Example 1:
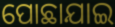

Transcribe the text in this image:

ପୋଛାଯାଇ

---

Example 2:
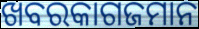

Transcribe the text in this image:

ଖବରକାଗଜମାନ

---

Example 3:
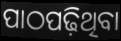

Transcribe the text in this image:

ପାଠପଢ଼ିଥିବା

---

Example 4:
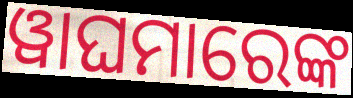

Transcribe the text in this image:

ୱାଘମାରେଙ୍କ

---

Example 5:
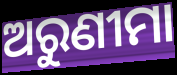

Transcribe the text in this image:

ଅରୁଣୀମା